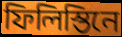
ফিলিস্তিনে